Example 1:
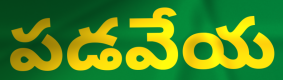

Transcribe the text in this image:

పడవేయ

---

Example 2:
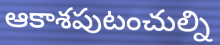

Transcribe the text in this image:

ఆకాశపుటంచుల్ని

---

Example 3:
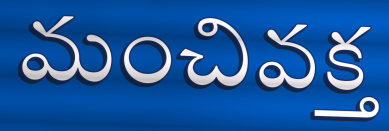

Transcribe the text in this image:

మంచివక్త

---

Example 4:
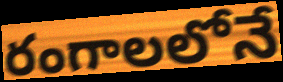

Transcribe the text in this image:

రంగాలలోనే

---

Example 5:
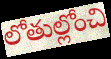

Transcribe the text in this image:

లోతుల్లోంచి